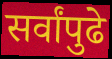
सर्वांपुढे